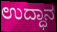
ಉದ್ಧಾನ